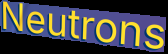
Neutrons